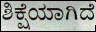
ಶಿಕ್ಷೆಯಾಗಿದೆ